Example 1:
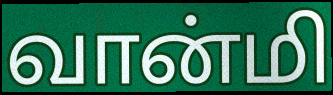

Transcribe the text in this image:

வான்மி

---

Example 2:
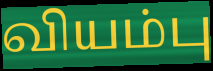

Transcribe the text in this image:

வியம்பு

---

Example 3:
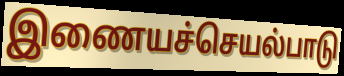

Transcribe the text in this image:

இணையச்செயல்பாடு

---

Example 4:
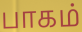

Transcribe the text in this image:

பாகம்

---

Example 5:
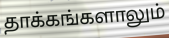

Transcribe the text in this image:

தாக்கங்களாலும்